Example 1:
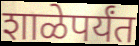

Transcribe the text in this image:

शाळेपर्यंत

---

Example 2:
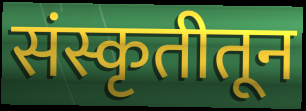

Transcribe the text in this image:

संस्कृतीतून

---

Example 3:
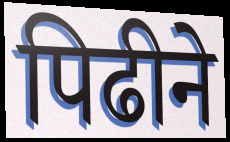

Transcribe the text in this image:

पिढीने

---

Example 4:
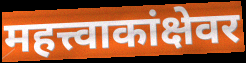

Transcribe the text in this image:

महत्त्वाकांक्षेवर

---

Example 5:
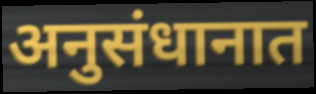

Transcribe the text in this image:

अनुसंधानात